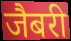
जैबरी